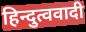
हिन्दुत्ववादी